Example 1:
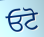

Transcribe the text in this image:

ਓਟੋ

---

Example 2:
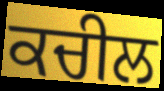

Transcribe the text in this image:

ਕਚੀਲ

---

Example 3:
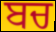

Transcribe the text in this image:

ਬਚ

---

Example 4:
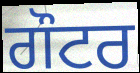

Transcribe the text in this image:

ਗੌਟਰ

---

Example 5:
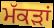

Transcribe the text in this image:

ਮੱਕੜਾਂ